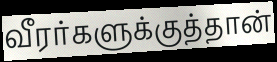
வீரர்களுக்குத்தான்